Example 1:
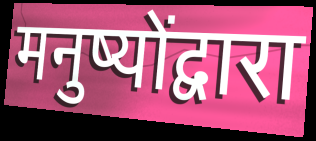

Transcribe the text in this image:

मनुष्योंद्वारा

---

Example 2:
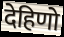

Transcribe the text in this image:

देहिणो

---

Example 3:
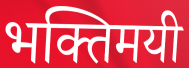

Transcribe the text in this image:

भक्तिमयी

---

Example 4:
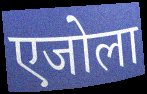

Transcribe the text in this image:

एजोला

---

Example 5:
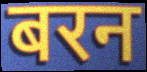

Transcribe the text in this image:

बरन